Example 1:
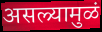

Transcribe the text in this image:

असल्यामुळं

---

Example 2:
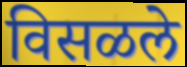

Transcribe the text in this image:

विसळले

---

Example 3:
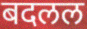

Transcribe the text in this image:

बदलल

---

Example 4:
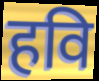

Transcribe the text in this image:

हवि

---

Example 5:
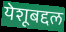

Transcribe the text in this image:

येशूबद्दल